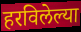
हरविलेल्या